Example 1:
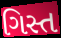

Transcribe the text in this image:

ગિસ્ત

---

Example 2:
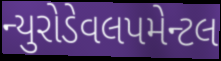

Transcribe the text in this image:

ન્યુરોડેવલપમેન્ટલ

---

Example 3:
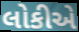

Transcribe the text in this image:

લોકીએ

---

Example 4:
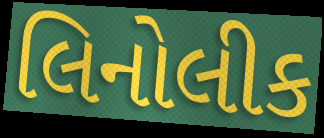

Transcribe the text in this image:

લિનોલીક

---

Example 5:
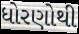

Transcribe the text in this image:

ધોરણોથી